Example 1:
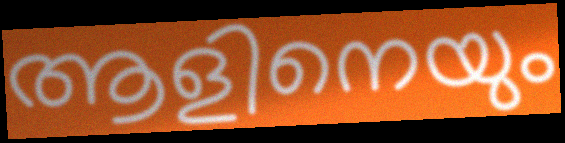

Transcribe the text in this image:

ആളിനെയും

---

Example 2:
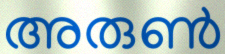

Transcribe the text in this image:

അരുൺ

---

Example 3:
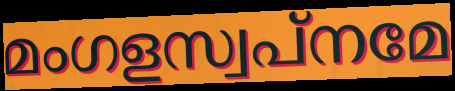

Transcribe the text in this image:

മംഗളസ്വപ്നമേ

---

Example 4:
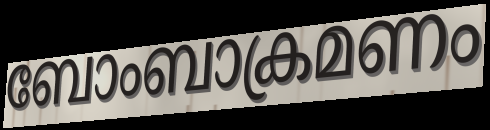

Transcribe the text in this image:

ബോംബാക്രമണം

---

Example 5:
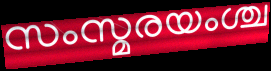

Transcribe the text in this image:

സംസ്മരയംശ്ച